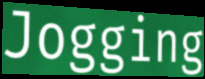
Jogging